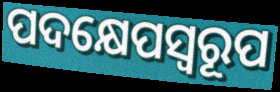
ପଦକ୍ଷେପସ୍ଵରୂପ